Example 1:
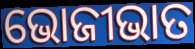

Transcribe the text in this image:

ଭୋଜୀଭାତ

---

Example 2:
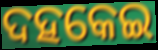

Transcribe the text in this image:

ଦହକେଇ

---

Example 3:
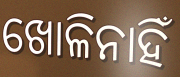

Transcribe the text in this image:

ଖୋଳିନାହିଁ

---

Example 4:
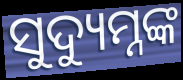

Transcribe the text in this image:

ସୁଦ୍ୟୁମ୍ନଙ୍କ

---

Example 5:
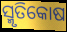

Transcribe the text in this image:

ସ୍ମୃତିକୋଷ